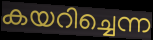
കയറിച്ചെന്ന